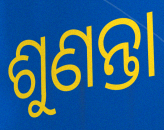
ଶୁଣନ୍ତା